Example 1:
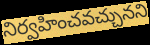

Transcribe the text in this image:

నిర్వహించవచ్చునని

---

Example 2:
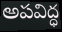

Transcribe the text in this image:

అపవిద్ధ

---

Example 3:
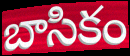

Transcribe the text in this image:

బాసికం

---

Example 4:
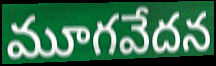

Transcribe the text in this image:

మూగవేదన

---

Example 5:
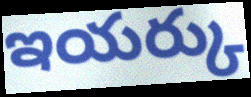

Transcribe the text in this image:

ఇయర్కు